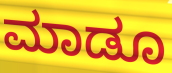
ಮಾಡೂ